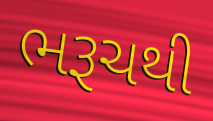
ભરૂચથી